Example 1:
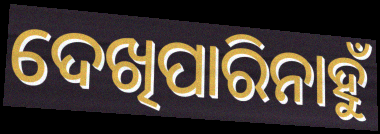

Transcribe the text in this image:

ଦେଖିପାରିନାହୁଁ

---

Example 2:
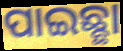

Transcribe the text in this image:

ପାଇଛ୍ଛା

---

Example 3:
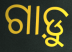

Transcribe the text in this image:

ଗାଡ଼ୁ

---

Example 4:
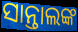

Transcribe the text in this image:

ସାନ୍ତାଲଙ୍କ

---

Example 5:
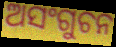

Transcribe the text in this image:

ଅସଂଗୁଚନ